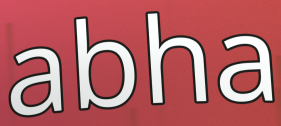
abha